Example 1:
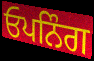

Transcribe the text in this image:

ਓਪਨਿੰਗ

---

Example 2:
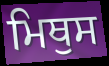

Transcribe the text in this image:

ਮਿਥੁਸ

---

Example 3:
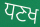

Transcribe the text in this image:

ਧਣਖ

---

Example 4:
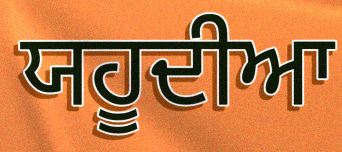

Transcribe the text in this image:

ਯਹੂਦੀਆ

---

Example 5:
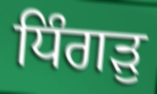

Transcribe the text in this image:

ਧਿੰਗੜੁ